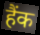
हैंक